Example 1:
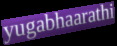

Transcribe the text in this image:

yugabhaarathi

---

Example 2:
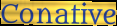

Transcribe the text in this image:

Conative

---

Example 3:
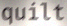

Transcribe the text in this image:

quilt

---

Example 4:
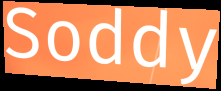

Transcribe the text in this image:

Soddy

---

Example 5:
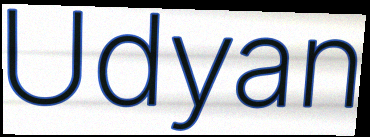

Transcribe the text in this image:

Udyan